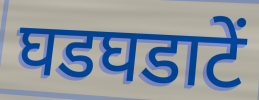
घडघडाटें